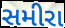
સમીરા